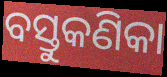
ବସ୍ତୁକଣିକା